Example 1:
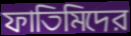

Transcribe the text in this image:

ফাতিমিদের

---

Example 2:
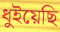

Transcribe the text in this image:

ধুইয়েছি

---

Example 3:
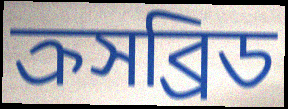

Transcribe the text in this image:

ক্রসব্রিড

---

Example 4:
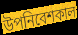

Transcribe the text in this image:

উপনিবেশকাল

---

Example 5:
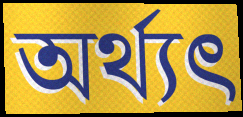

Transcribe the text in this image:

অর্থ্যৎ